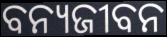
ବନ୍ୟଜୀବନ